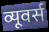
व्यूवर्स